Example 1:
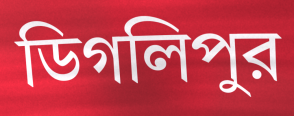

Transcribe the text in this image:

ডিগলিপুর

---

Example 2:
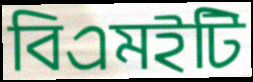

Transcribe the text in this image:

বিএমইটি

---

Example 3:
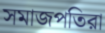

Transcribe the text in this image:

সমাজপতিরা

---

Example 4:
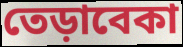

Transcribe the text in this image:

তেড়াবেকা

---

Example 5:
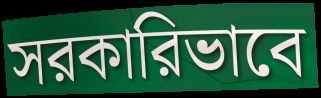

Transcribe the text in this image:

সরকারিভাবে